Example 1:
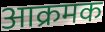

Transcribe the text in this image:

आक्रमक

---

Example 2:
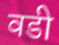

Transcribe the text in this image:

वडी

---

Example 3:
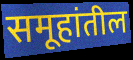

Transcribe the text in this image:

समूहांतील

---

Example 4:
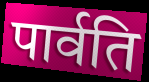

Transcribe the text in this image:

पार्वति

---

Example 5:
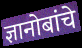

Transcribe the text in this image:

ज्ञानोबांचे